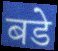
बडे